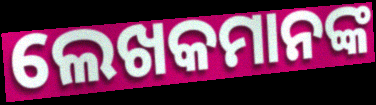
ଲେଖକମାନଙ୍କ